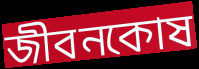
জীবনকোষ